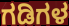
ಗಡಿಗಳ